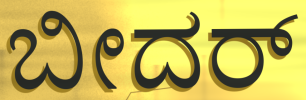
ಬೀದರ್